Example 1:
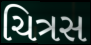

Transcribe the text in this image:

ચિત્રસ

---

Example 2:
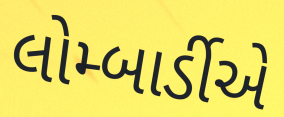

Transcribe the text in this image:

લોમ્બાર્ડીએ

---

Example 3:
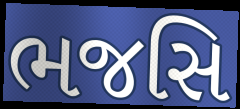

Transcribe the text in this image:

ભજસિ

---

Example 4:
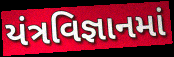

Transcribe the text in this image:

યંત્રવિજ્ઞાનમાં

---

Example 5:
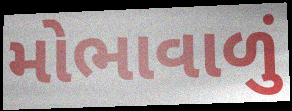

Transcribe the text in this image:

મોભાવાળું